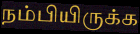
நம்பியிருக்க